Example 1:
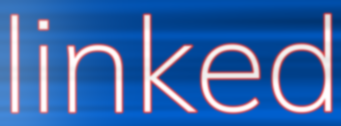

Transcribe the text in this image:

linked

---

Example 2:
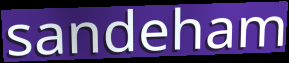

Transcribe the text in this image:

sandeham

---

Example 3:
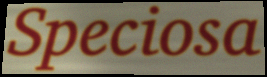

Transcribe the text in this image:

Speciosa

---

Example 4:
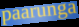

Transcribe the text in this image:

paarunga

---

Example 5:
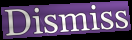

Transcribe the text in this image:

Dismiss